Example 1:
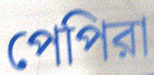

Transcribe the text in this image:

পেপিরা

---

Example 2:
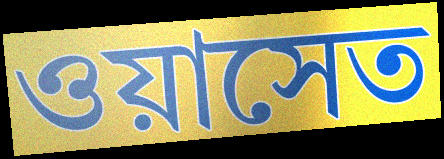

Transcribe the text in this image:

ওয়াসেত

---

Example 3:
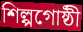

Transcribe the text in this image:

শিল্পগোষ্ঠী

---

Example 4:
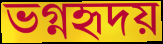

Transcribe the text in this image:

ভগ্নহৃদয়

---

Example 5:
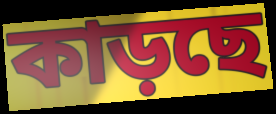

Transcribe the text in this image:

কাড়ছে